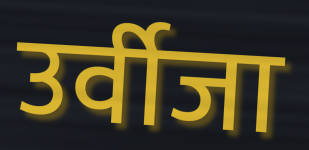
उर्वीजा